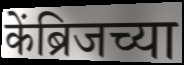
केंब्रिजच्या